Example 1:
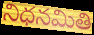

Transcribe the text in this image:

నిధనమితి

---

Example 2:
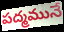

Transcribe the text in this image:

పద్మమునే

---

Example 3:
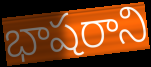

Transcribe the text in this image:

భాషరాని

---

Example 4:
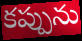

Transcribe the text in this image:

కప్పును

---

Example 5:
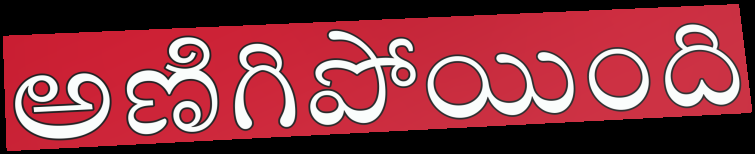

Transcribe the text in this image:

అణిగిపోయింది